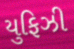
યુફિઝી